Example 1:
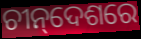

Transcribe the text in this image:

ଚୀନ୍‌ଦେଶରେ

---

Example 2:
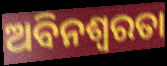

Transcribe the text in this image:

ଅବିନଶ୍ୱରତା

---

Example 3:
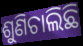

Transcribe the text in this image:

ଶୁଣିଚାଲିଛି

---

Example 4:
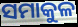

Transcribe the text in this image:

ସମାକୁଳ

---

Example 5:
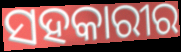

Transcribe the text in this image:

ସହକାରୀର